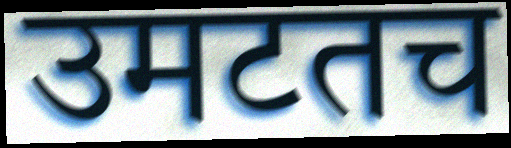
उमटतच